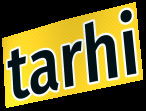
tarhi